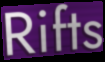
Rifts